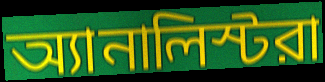
অ্যানালিস্টরা